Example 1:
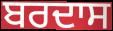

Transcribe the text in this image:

ਬਰਦਾਸ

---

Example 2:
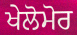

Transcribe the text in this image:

ਖੇਲੋਮੋਰ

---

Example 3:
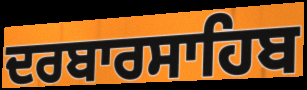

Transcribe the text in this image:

ਦਰਬਾਰਸਾਹਿਬ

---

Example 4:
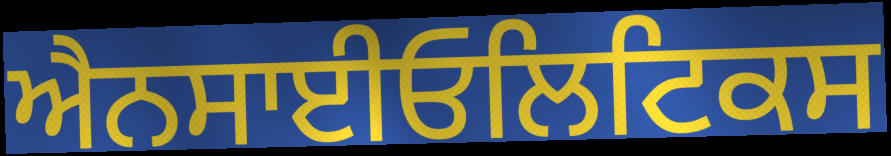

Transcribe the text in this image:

ਐਨਸਾਈਓਲਿਟਿਕਸ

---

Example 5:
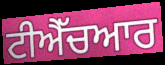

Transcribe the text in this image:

ਟੀਐੱਚਆਰ